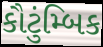
કૌટુંમ્બિક